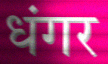
धंगर